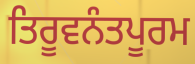
ਤਿਰੂਵਨੰਤਪੂਰਮ